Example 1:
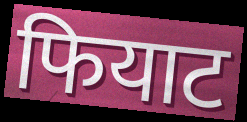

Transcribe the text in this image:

फियाट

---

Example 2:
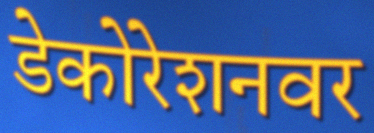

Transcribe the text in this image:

डेकोरेशनवर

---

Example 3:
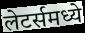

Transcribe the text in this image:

लेटर्समध्ये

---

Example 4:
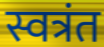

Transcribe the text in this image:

स्वत्रंत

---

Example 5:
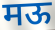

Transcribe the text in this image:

मऊ